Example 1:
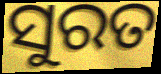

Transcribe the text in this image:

ସୁରତ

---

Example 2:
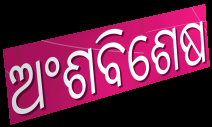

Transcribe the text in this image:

ଅଂଶବିଶେଷ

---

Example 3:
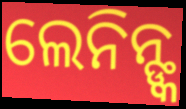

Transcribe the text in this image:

ଲେନିନ୍ଙ୍କ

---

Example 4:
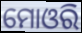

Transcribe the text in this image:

ମୋଓରି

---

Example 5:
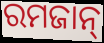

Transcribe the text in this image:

ରମଜାନ୍